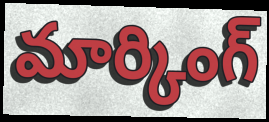
మార్కింగ్